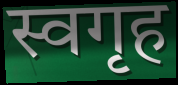
स्वगृह